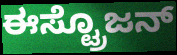
ಈಸ್ಟ್ರೊಜನ್